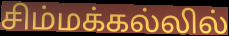
சிம்மக்கல்லில்